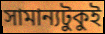
সামান্যটুকুই